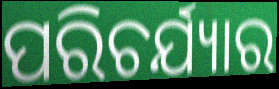
ପରିଚର୍ଯ୍ୟାର